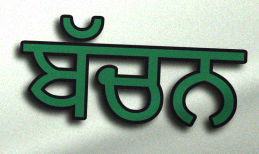
ਬੱਚਨ